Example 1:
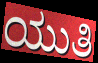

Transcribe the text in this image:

ಯುತಿ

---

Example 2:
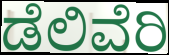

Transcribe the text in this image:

ಡೆಲಿವೆರಿ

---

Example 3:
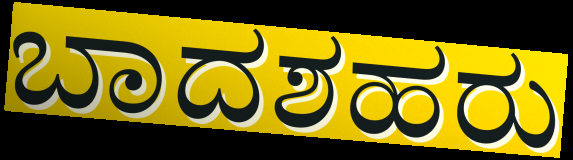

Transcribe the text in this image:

ಬಾದಶಹರು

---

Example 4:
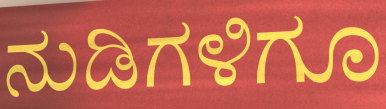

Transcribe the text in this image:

ನುಡಿಗಳಿಗೂ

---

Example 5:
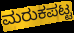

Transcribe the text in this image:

ಮರುಕಪಟ್ಟ